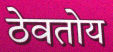
ठेवतोय